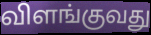
விளங்குவது